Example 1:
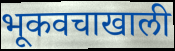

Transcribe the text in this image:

भूकवचाखाली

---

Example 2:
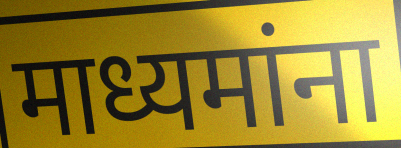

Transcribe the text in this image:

माध्यमांना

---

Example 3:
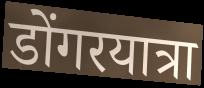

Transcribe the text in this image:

डोंगरयात्रा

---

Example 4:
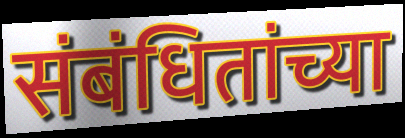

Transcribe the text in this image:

संबंधितांच्या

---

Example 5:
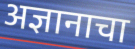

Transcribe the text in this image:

अज्ञानाचा